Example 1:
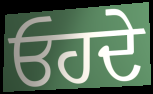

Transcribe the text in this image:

ਓਹਦੇ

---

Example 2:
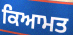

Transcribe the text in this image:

ਕਿਆਮਤ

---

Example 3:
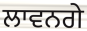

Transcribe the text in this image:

ਲਾਵਨਗੇ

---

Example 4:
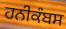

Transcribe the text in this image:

ਹਨੀਕੰਬਸ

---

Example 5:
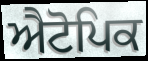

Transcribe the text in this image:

ਐਟੋਪਿਕ